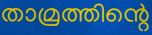
താമ്രത്തിന്റെ